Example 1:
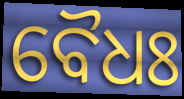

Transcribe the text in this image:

ବୈଧଃ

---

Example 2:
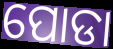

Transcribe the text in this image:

ପୋଡା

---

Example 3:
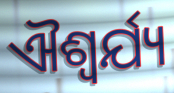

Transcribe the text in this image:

ଐଶ୍ଵର୍ଯ୍ୟ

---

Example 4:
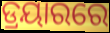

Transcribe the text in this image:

ଡ୍ରୟାରରେ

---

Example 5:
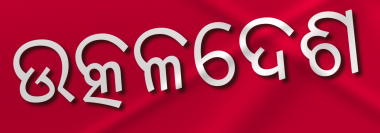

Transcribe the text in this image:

ଉତ୍କଳଦେଶ